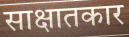
साक्षातकार